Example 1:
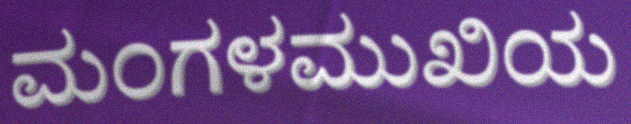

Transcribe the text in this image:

ಮಂಗಳಮುಖಿಯ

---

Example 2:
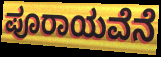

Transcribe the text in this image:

ಪೂರಾಯವೆನೆ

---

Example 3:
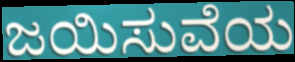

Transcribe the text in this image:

ಜಯಿಸುವೆಯ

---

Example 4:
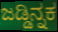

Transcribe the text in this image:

ಜಡ್ಡಿನ್ನಕ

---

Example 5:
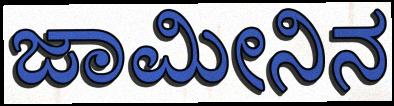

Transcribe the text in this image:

ಜಾಮೀನಿನ